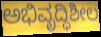
ಅಭಿವೃದ್ಧಿಶೀಲ